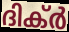
ദിക്ർ